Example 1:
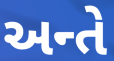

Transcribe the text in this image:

અન્તે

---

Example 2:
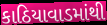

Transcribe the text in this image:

કાઠિયાવાડમાંથી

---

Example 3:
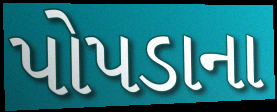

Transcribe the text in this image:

પોપડાના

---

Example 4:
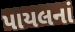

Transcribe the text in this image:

પાયલનાં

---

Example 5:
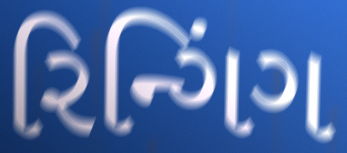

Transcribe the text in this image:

રિન્ગિંગ